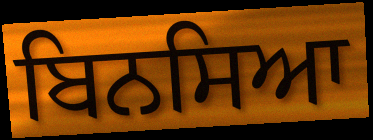
ਬਿਨਸਿਆ